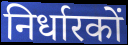
निर्धारकों